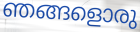
ഞങ്ങളൊരു